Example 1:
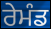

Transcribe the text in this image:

ਰੇਮੰਡ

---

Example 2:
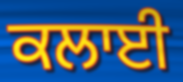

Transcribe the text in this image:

ਕਲਾਈ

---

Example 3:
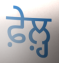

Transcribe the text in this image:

ਫ਼ੇਲ਼੍ਹ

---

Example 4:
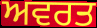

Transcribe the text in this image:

ਅਵਰਤ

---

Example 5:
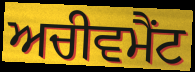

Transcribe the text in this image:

ਅਚੀਵਮੈਂਟ